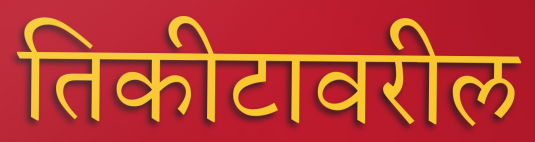
तिकीटावरील